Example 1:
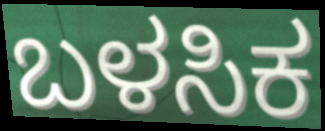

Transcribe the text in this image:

ಬಳಸಿಕ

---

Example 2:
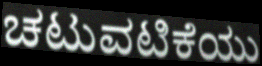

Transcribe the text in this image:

ಚಟುವಟಿಕೆಯು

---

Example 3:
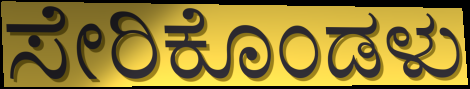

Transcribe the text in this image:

ಸೇರಿಕೊಂಡಳು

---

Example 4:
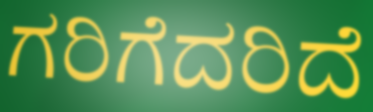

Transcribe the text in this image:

ಗರಿಗೆದರಿದೆ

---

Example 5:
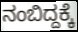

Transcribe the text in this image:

ನಂಬಿದ್ದಕ್ಕೆ